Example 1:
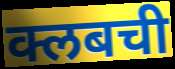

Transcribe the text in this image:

क्लबची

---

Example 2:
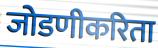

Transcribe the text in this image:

जोडणीकरिता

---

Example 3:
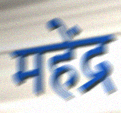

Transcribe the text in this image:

महेंद्र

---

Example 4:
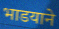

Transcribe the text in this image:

भाडयाने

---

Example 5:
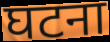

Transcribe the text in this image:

घटना